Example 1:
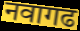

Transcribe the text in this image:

नवागढ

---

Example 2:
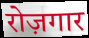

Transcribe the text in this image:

रोज़गार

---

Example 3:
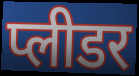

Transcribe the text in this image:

प्लीडर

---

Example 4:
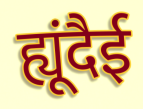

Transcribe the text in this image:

ह्यूंदैई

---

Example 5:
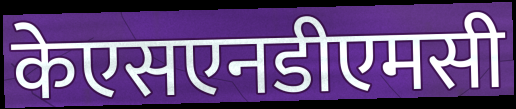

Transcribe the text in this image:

केएसएनडीएमसी